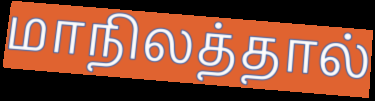
மாநிலத்தால்